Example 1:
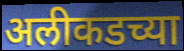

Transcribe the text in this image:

अलीकडच्या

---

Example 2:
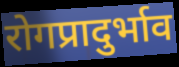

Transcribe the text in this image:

रोगप्रादुर्भाव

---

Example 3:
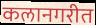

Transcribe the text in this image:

कलानगरीत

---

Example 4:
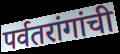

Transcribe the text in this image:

पर्वतरांगांची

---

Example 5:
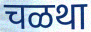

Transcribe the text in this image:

चळथा